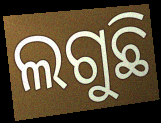
ଲଗୁଛି